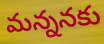
మన్ననకు